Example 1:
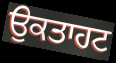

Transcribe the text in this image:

ਉਕਤਾਹਟ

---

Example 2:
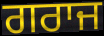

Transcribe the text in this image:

ਗਰਾਜ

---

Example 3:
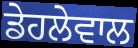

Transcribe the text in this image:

ਡੇਹਲੇਵਾਲ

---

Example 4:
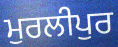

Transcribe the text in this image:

ਮੁਰਲੀਪੁਰ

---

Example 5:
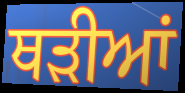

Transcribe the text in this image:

ਥੜੀਆਂ